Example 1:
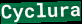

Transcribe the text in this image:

Cyclura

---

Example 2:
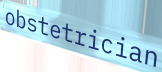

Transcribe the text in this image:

obstetrician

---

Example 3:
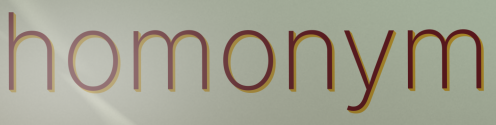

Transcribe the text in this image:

homonym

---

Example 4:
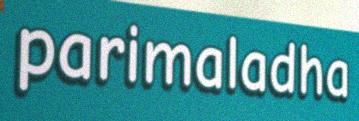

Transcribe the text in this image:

parimaladha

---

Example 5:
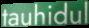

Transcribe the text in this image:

tauhidul